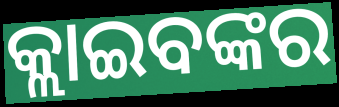
କ୍ଲାଇବଙ୍କର